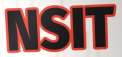
NSIT